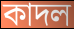
কাদল